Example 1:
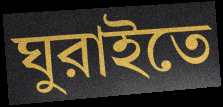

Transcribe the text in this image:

ঘুরাইতে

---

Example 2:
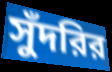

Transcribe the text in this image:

সুঁদরির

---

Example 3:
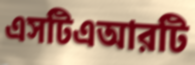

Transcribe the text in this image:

এসটিএআরটি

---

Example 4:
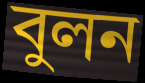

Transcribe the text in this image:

বুলন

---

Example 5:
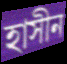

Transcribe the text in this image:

হাসীন